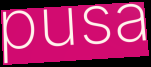
pusa